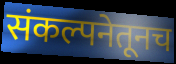
संकल्पनेतूनच